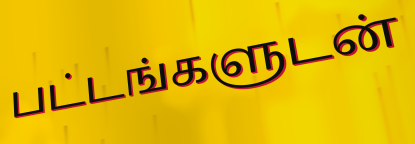
பட்டங்களுடன்